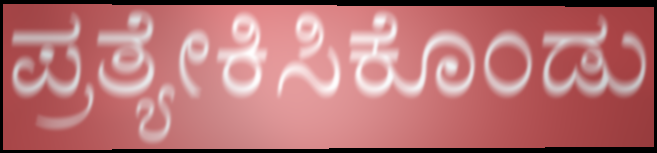
ಪ್ರತ್ಯೇಕಿಸಿಕೊಂಡು